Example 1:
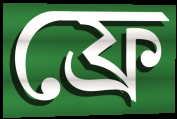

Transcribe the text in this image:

ফ্রে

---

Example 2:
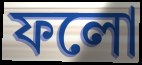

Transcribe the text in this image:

ফলো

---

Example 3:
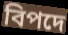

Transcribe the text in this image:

বিপদে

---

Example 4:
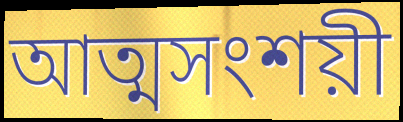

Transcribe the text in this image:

আত্মসংশয়ী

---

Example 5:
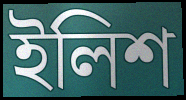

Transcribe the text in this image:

ইলিশ